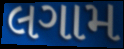
લગામ